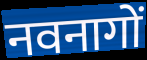
नवनागों